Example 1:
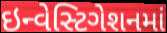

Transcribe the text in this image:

ઇન્વેસ્ટિગેશનમાં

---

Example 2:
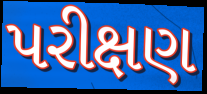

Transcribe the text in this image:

પરીક્ષણ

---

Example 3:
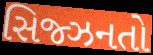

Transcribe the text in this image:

સિજ્ઝનતો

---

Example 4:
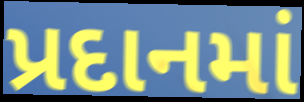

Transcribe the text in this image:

પ્રદાનમાં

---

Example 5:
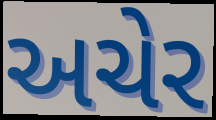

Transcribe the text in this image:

અચેર